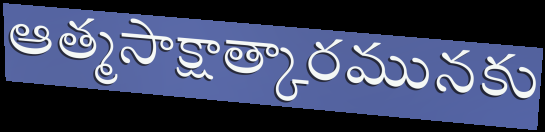
ఆత్మసాక్షాత్కారమునకు